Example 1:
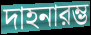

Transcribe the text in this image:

দাহনারম্ভ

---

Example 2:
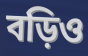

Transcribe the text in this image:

বড়িও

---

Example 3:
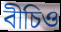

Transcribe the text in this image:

বীচিও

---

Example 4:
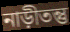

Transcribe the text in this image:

নাড়ীতন্তু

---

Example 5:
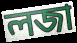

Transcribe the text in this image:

লজা